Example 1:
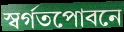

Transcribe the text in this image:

স্বর্গতপোবনে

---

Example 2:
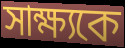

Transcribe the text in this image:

সাক্ষ্যকে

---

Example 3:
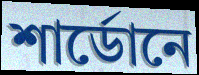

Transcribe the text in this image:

শার্ডোনে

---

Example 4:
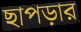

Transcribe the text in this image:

ছাপড়ার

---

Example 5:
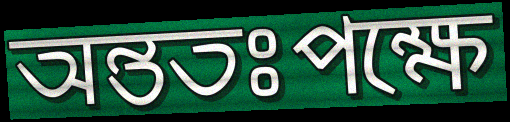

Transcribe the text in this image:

অন্ততঃপক্ষে